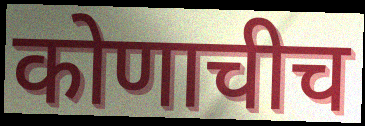
कोणाचीच